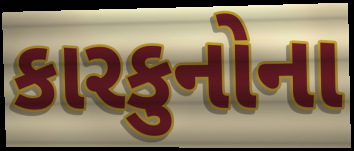
કારકુનોના